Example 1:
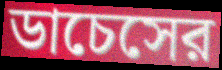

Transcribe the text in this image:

ডাচেসের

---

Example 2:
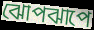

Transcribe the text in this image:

ঝোপঝাপে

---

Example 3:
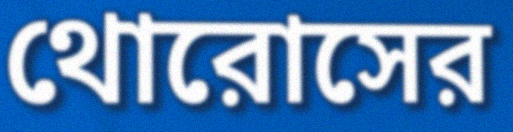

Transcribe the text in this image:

থোরোসের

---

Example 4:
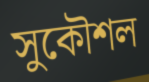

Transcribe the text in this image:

সুকৌশল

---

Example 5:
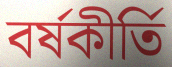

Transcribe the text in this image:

বর্ষকীর্তি